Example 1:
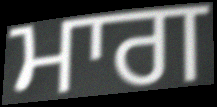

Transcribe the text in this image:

ਮਾਗ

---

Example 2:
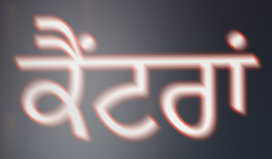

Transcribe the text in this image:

ਕੈਂਟਰਾਂ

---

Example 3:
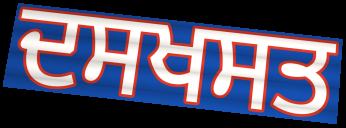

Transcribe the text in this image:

ਦਸਖਸਤ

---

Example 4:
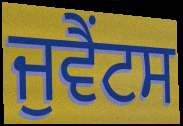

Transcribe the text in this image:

ਜੁਵੈਂਟਸ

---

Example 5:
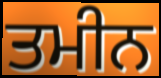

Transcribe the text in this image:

ਤਮੀਨ